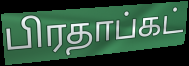
பிரதாப்கட்